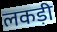
लकड़ी